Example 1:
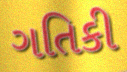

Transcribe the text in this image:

ગતિકી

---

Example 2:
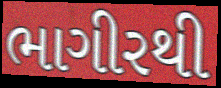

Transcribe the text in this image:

ભાગીરથી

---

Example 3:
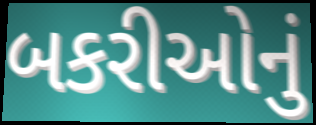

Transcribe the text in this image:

બકરીઓનું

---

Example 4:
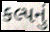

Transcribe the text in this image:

કલ્પનું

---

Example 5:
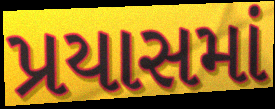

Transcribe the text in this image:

પ્રયાસમાં